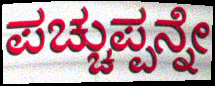
ಪಚ್ಚುಪ್ಪನ್ನೇ